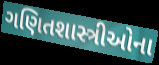
ગણિતશાસ્ત્રીઓના